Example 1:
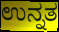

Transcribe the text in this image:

ಉನ್ನತ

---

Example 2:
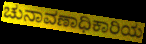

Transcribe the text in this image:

ಚುನಾವಣಾಧಿಕಾರಿಯ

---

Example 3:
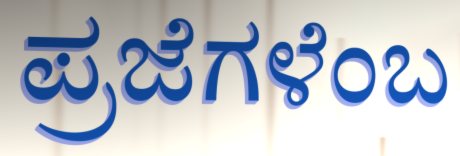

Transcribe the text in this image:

ಪ್ರಜೆಗಳೆಂಬ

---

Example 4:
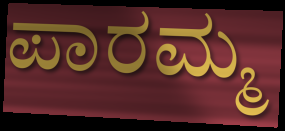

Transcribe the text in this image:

ಪಾರಮ್ಮ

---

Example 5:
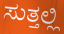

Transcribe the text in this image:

ಸುತ್ತಲ್ಲಿ